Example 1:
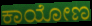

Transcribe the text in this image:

ಕಾಯೋಣ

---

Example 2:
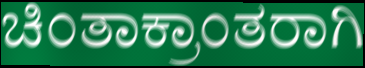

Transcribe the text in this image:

ಚಿಂತಾಕ್ರಾಂತರಾಗಿ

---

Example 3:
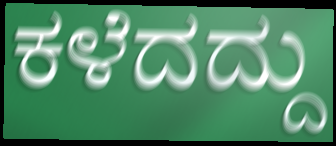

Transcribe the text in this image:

ಕಳೆದದ್ದು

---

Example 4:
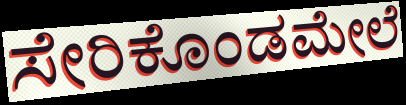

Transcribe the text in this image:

ಸೇರಿಕೊಂಡಮೇಲೆ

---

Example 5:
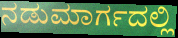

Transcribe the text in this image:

ನಡುಮಾರ್ಗದಲ್ಲಿ